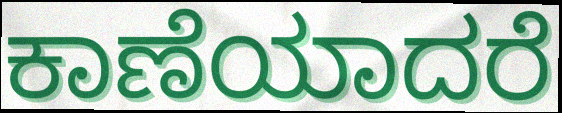
ಕಾಣೆಯಾದರೆ